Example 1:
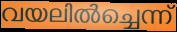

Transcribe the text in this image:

വയലിൽച്ചെന്ന്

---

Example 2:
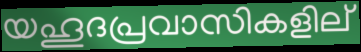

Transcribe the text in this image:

യഹൂദപ്രവാസികളില്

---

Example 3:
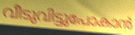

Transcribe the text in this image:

വീടുവിട്ടുപോകാൻ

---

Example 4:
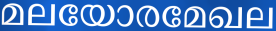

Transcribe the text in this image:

മലയോരമേഖല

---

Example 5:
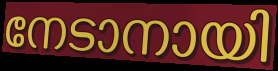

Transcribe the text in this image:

നേടാനായി